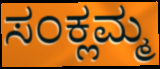
ಸಂಕ್ಲಮ್ಮ